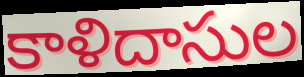
కాళిదాసుల